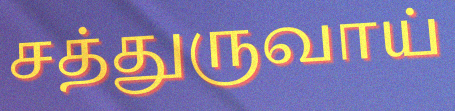
சத்துருவாய்